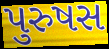
પુરુષસ